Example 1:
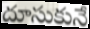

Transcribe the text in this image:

దూసుకునే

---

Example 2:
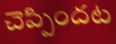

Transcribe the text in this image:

చెప్పిందట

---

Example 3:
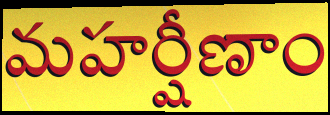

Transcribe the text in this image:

మహర్షీణాం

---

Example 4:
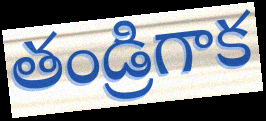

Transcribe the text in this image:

తండ్రిగాక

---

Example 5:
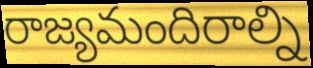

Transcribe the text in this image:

రాజ్యమందిరాల్ని